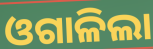
ଓଗାଳିଲା